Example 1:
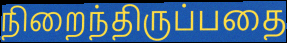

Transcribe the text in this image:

நிறைந்திருப்பதை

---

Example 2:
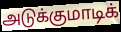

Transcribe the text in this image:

அடுக்குமாடிக்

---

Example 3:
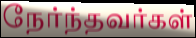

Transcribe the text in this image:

நேர்ந்தவர்கள்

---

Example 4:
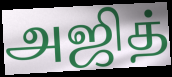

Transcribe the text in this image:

அஜித்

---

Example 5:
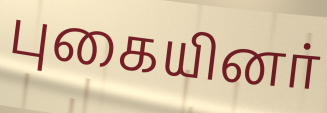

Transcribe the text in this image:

புகையினர்